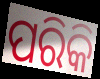
ପରିକି